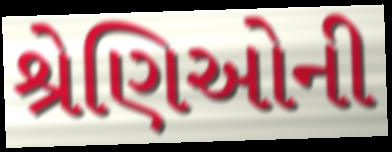
શ્રેણિઓની